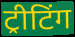
ट्रीटिंग